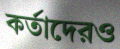
কর্তাদেরও